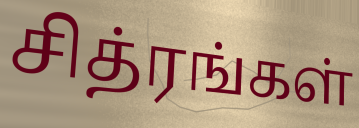
சித்ரங்கள்